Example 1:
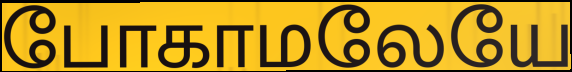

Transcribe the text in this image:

போகாமலேயே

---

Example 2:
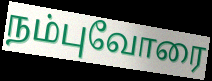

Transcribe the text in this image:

நம்புவோரை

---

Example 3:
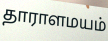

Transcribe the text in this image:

தாராளமயம்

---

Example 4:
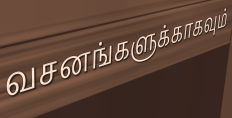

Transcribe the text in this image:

வசனங்களுக்காகவும்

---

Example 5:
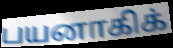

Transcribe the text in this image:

பயனாகிக்